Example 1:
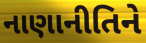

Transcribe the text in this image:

નાણાનીતિને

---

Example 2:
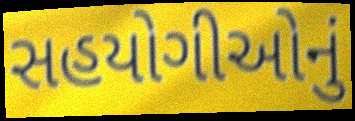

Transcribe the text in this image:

સહયોગીઓનું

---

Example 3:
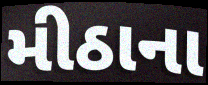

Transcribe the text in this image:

મીઠાના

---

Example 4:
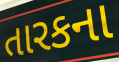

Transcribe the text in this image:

તારકના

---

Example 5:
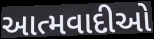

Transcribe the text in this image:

આત્મવાદીઓ